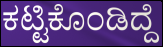
ಕಟ್ಟಿಕೊಂಡಿದ್ದೆ